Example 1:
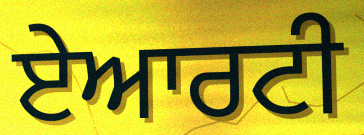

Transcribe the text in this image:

ਏਆਰਟੀ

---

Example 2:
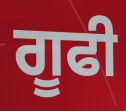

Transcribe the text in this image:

ਗੂਫੀ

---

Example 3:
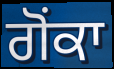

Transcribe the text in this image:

ਗੋਂਕਾ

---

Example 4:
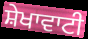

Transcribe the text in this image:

ਸ਼ੇਖਾਵਾਟੀ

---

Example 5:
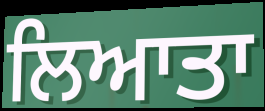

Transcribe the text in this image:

ਲਿਆਤਾ